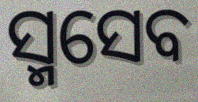
ସ୍ମସେବ